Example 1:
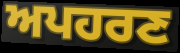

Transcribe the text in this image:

ਅਪਹਰਣ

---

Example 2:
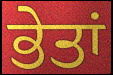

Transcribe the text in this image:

ਭੇਤਾਂ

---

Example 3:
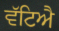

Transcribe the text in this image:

ਵੱਟਿਐ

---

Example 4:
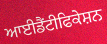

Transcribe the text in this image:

ਆਈਡੈਂਟੀਫਿਕੇਸ਼ਨ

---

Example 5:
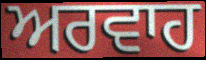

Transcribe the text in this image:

ਅਰਵਾਹ